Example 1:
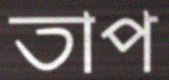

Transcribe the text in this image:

তাপ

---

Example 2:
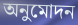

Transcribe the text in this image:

অনুমোদন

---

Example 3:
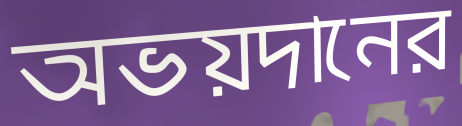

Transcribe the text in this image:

অভয়দানের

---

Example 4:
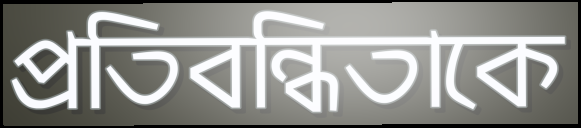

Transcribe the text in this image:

প্রতিবন্ধিতাকে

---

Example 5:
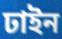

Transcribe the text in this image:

ঢাইন